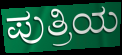
ಪುತ್ರಿಯ